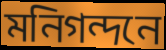
মনিগন্দনে